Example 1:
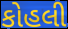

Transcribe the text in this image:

કોહલી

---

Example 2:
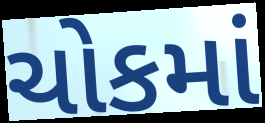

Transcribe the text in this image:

ચોકમાં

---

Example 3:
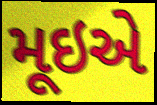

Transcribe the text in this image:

મૂઇએ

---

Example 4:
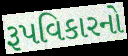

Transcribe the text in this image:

રૂપવિકારનો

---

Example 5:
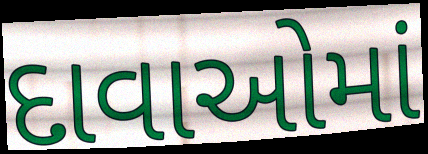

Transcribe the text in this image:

દાવાઓમાં